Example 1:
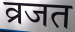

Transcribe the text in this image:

व्रजत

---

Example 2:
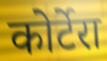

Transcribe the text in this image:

कोर्टेरा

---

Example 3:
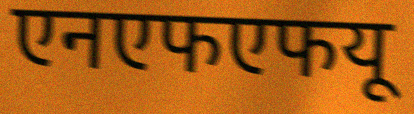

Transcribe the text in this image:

एनएफएफयू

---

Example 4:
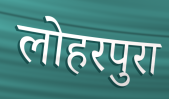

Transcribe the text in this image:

लोहरपुरा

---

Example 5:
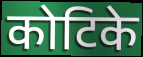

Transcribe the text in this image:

कोटिके